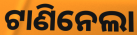
ଟାଣିନେଲା